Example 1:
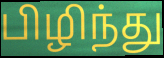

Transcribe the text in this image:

பிழிந்து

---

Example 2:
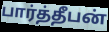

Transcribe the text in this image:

பார்த்தீபன்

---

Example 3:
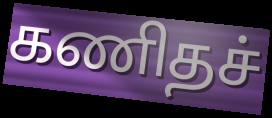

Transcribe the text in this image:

கணிதச்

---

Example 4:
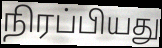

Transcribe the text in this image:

நிரப்பியது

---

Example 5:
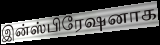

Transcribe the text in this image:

இன்ஸ்பிரேஷனாக